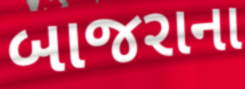
બાજરાના